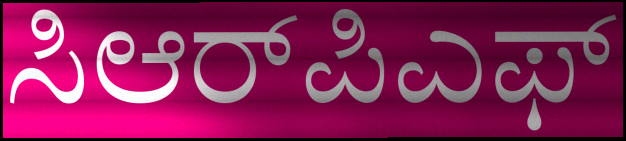
ಸಿಆರ್‌ಪಿಎಫ್